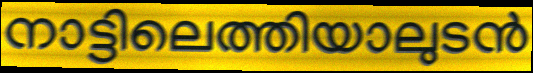
നാട്ടിലെത്തിയാലുടൻ